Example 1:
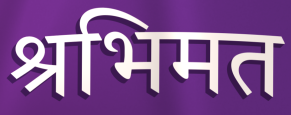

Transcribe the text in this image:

श्रभिमत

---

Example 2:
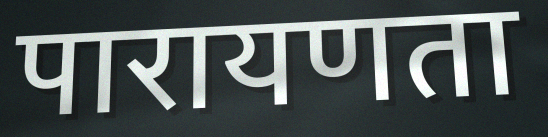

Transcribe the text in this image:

पारायणता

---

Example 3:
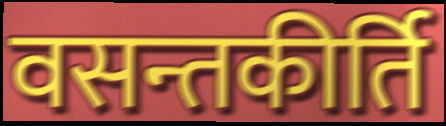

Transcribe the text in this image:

वसन्तकीर्ति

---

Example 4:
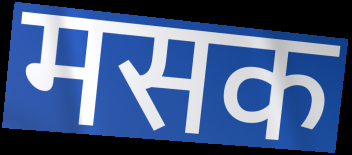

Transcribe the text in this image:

मसक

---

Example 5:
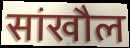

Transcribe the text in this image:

सांखौल